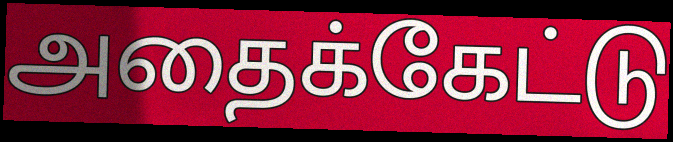
அதைக்கேட்டு